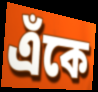
এঁকে